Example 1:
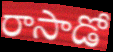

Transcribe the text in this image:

రాసాడో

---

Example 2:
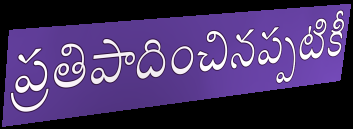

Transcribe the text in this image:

ప్రతిపాదించినప్పటికీ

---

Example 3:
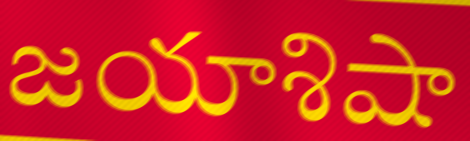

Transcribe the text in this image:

జయాశిషా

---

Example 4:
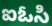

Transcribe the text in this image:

ఐఓసి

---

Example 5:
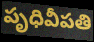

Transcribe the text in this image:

పృధివీపతి